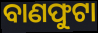
ବାଣଫୁଟା